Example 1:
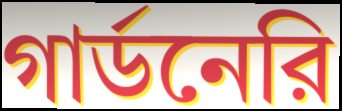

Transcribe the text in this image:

গার্ডনেরি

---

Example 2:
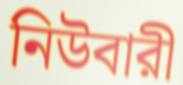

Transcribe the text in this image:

নিউবারী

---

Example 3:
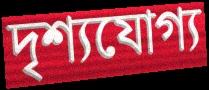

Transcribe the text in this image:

দৃশ্যযোগ্য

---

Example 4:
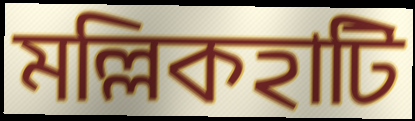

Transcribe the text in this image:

মল্লিকহাটি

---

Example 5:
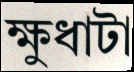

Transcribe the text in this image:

ক্ষুধাটা